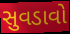
સુવડાવો